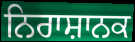
ਨਿਰਾਸ਼ਾਨਕ